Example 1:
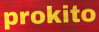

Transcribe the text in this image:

prokito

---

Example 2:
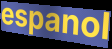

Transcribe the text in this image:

espanol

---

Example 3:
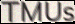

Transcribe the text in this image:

TMUs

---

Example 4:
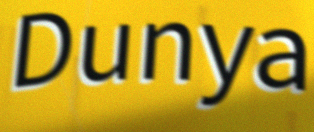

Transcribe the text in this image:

Dunya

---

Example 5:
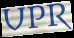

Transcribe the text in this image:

UPR